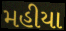
મહીયા